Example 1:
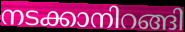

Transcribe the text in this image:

നടക്കാനിറങ്ങി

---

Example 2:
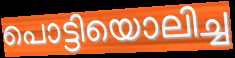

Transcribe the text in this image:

പൊട്ടിയൊലിച്ച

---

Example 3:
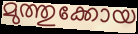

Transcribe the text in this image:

മുത്തുക്കോയ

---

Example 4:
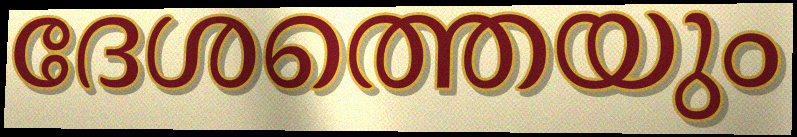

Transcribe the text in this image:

ദേശത്തെയും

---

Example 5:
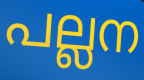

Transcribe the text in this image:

പല്ലന